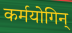
कर्मयोगिन्